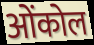
ओंकोल